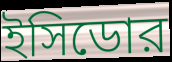
ইসিডোর